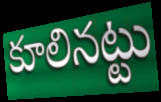
కూలినట్టు